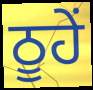
ਠੂਹੇਂ